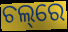
ଚଲ୍‌ରେ